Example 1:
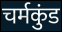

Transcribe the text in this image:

चर्मकुंड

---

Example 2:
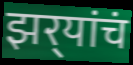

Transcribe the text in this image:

झर्‍यांचं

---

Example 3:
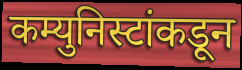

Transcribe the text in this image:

कम्युनिस्टांकडून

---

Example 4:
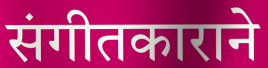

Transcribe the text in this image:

संगीतकाराने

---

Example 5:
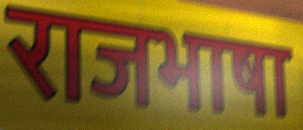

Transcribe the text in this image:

राजभाषा